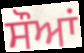
ਸੌਆਂ